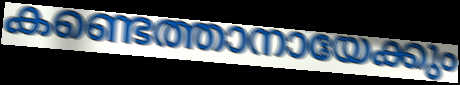
കണ്ടെത്താനായേക്കും